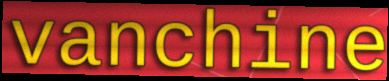
vanchine